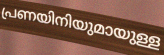
പ്രണയിനിയുമായുള്ള